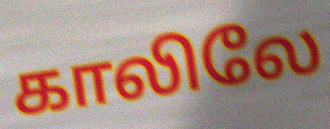
காலிலே